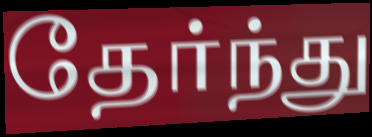
தேர்ந்து